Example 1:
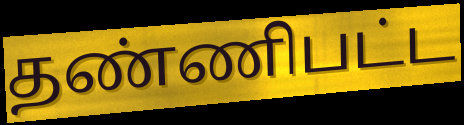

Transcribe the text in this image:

தண்ணிபட்ட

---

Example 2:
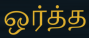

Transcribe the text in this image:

ஒர்த்த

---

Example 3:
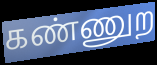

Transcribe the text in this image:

கண்ணுற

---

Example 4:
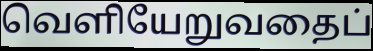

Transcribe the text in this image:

வெளியேறுவதைப்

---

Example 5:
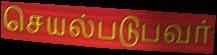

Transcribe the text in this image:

செயல்படுபவர்